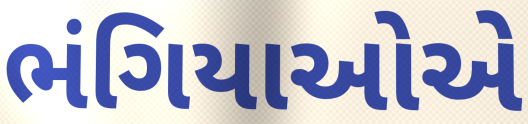
ભંગિયાઓએ